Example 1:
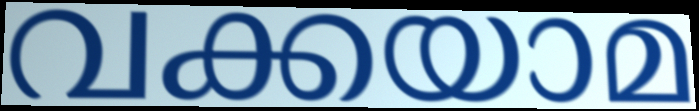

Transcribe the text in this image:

വക്കയാമ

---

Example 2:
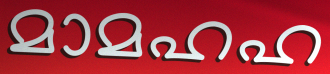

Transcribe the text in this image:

മാമഹഹ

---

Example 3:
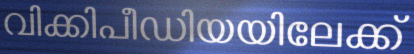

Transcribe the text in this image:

വിക്കിപീഡിയയിലേക്ക്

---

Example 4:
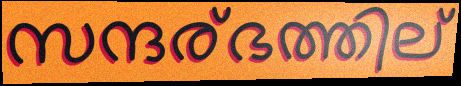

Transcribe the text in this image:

സന്ദര്ഭത്തില്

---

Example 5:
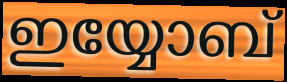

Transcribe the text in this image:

ഇയ്യോബ്